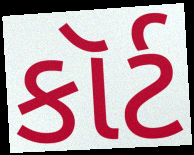
કૉર્ટ